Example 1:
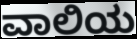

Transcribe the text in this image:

ವಾಲಿಯ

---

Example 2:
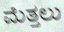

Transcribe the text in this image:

ಮೆತ್ತಲು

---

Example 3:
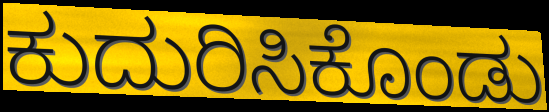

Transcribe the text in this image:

ಕುದುರಿಸಿಕೊಂಡು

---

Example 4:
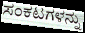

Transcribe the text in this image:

ಸಂಕಟಗಳನ್ನು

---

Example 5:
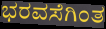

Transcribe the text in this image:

ಭರವಸೆಗಿಂತ